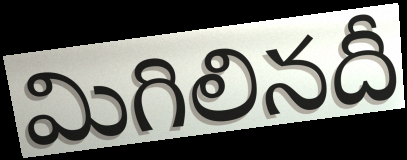
మిగిలినదీ